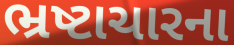
ભ્રષ્ટાચારના